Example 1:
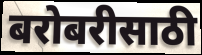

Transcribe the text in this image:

बरोबरीसाठी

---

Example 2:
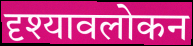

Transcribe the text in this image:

दृश्‍यावलोकन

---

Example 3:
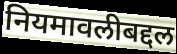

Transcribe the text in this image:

नियमावलीबद्दल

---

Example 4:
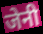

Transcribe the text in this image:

जेनी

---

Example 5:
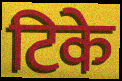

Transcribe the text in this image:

टिके